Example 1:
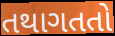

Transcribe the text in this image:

તથાગતતો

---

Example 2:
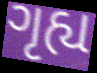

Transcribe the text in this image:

ગૃહ્ય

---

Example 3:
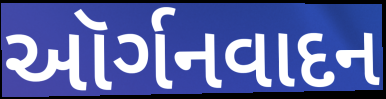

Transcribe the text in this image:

ઑર્ગનવાદન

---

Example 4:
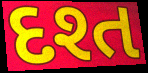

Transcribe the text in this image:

દશ્ત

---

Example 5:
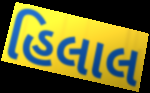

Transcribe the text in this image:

હિલાલ